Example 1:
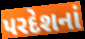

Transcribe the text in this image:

પરદેશનાં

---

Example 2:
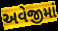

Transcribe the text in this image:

અવેજીમાં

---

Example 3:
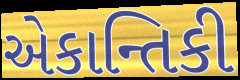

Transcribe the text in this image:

એકાન્તિકી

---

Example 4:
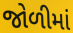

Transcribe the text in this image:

જોળીમાં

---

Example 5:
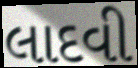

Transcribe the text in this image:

લાદવી